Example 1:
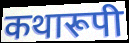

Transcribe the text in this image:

कथारूपी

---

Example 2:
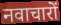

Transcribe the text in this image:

नवाचारों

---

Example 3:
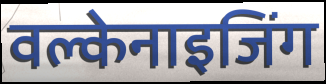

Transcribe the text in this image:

वल्केनाइजिंग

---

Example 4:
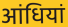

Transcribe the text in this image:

आंधियां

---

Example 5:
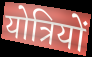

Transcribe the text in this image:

योत्रियों